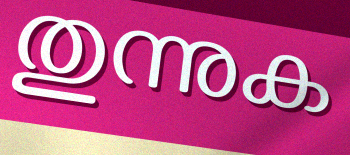
തുന്നുക